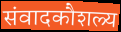
संवादकौशल्य